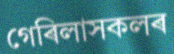
গেৰিলাসকলৰ